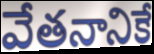
వేతనానికే